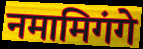
नमामिगंगे